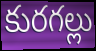
కురగల్లు